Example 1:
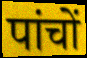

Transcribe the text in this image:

पांचों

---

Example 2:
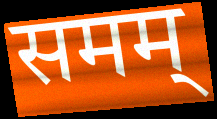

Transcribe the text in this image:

समम्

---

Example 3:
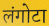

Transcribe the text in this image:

लंगोटा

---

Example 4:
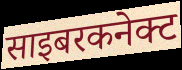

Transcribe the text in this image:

साइबरकनेक्ट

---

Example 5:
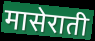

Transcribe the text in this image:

मासेराती